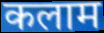
कलाम